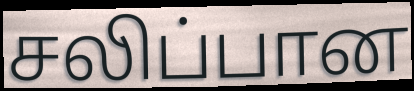
சலிப்பான